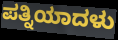
ಪತ್ನಿಯಾದಳು